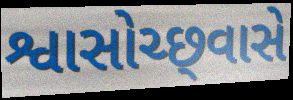
શ્વાસોચ્છ્‍વાસે